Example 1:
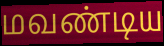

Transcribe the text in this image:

மவண்டிய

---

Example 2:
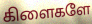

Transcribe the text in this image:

கிளைகளே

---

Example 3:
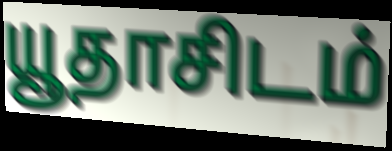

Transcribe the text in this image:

யூதாசிடம்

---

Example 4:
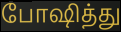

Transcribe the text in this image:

போஷித்து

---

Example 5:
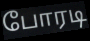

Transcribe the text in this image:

போரடி